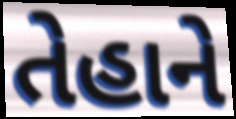
તેહાને